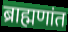
ब्राह्मणांत